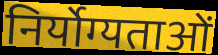
निर्योग्यताओं